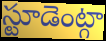
స్టూడెంట్గా